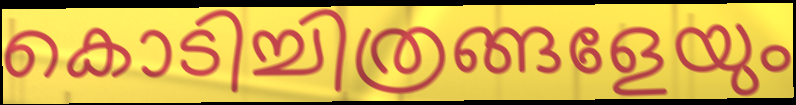
കൊടിച്ചിത്രങ്ങളേയും